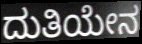
ದುತಿಯೇನ